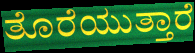
ತೊರೆಯುತ್ತಾರೆ